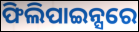
ଫିଲିପାଇନ୍ସରେ